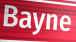
Bayne